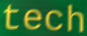
tech